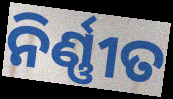
ନିର୍ଣ୍ଣୀତ